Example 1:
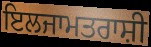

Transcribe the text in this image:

ਇਲਜਾਮਤਰਾਸ਼ੀ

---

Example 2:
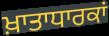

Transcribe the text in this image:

ਖ਼ਾਤਾਧਾਰਕਾਂ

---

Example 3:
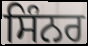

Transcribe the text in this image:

ਸਿੰਨਰ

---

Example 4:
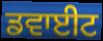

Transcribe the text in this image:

ਡਵਾਈਟ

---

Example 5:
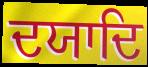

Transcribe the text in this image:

ਦਯਾਦਿ